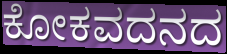
ಕೋಕವದನದ